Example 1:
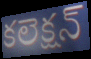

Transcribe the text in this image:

కలెక్షన్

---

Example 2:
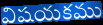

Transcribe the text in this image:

విషయకము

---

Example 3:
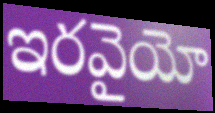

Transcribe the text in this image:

ఇరవైయో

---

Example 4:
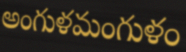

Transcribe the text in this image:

అంగుళమంగుళం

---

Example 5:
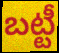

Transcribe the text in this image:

బట్టీ